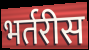
भर्तरीस